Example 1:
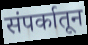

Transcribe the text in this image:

संपर्कातून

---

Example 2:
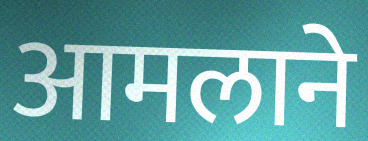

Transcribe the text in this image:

आमलाने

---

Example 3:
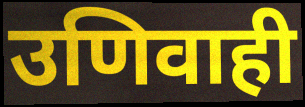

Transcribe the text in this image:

उणिवाही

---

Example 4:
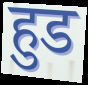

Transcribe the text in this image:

हुड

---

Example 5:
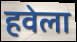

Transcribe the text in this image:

हवेला